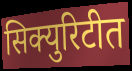
सिक्युरिटीत